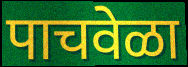
पाचवेळा